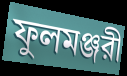
ফুলমঞ্জরী